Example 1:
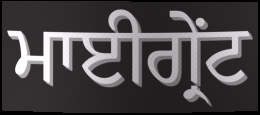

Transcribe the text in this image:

ਮਾਈਗ੍ਰੇਂਟ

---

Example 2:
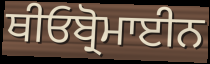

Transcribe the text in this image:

ਥੀਓਬ੍ਰੋਮਾਈਨ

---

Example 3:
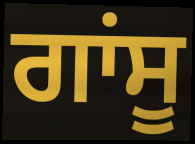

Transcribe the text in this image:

ਗਾਂਸੂ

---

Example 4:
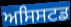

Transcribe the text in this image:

ਅਸਿਸਟਡ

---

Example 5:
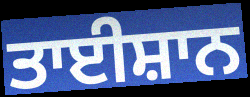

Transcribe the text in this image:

ਤਾਈਸ਼ਾਨ